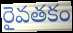
రైవతకం